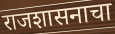
राजशासनाचा